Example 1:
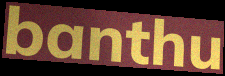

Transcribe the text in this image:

banthu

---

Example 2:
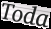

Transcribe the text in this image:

Toda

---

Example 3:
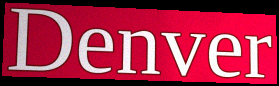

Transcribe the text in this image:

Denver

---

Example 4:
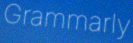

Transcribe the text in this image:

Grammarly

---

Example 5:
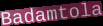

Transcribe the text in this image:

Badamtola